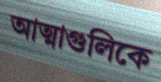
আত্মাগুলিকে